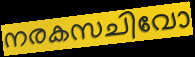
നരകസചിവോ